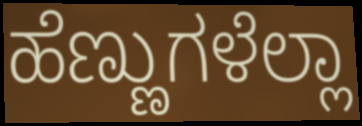
ಹೆಣ್ಣುಗಳೆಲ್ಲಾ